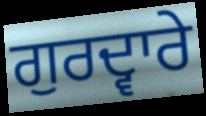
ਗੁਰਦ੍ਵਾਰੇ